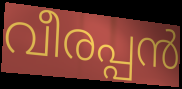
വീരപ്പൻ